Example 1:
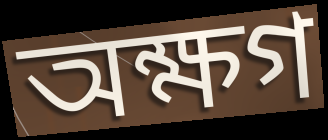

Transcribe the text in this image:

অক্ষগ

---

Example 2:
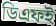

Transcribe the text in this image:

ডিএফই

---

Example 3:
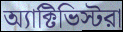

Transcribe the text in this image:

অ্যাক্টিভিস্টরা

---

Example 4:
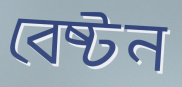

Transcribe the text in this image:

বেষ্টন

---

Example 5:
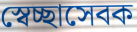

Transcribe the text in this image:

স্বেচ্ছাসেবক